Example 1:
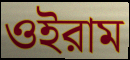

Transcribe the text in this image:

ওইরাম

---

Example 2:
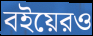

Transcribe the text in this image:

বইয়েরও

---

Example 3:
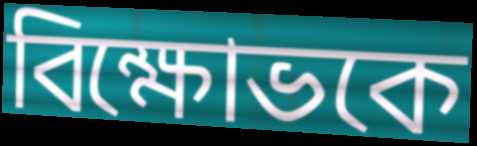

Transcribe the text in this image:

বিক্ষোভকে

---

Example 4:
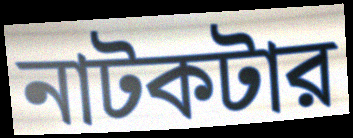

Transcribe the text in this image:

নাটকটার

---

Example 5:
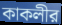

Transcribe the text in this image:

কাকলীর